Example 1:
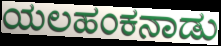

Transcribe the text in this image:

ಯಲಹಂಕನಾಡು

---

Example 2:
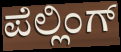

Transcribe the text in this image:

ಪೆಲ್ಲಿಂಗ್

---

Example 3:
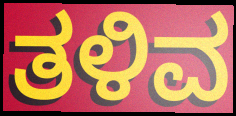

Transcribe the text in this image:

ತಳಿವ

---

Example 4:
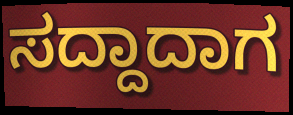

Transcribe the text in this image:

ಸದ್ದಾದಾಗ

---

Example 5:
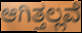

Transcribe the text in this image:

ಆಗಿತ್ತಲ್ಲವೆ